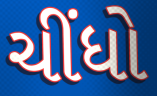
ચીંધો